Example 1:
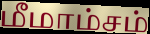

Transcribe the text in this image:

மீமாம்சம்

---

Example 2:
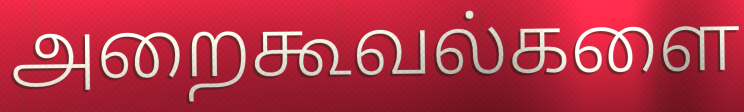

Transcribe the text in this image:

அறைகூவல்களை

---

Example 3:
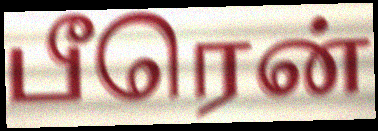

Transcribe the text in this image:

பீரென்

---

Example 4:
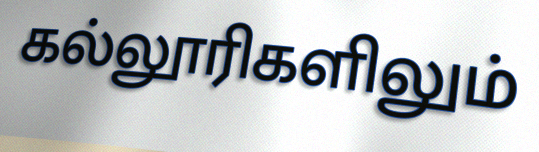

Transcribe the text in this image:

கல்லூரிகளிலும்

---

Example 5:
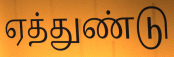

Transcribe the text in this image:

ஏத்துண்டு